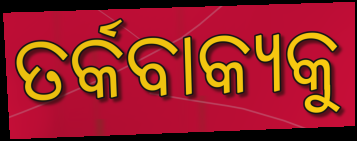
ତର୍କବାକ୍ୟକୁ